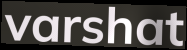
varshat